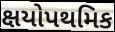
ક્ષયોપથમિક